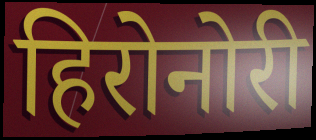
हिरोनोरी